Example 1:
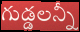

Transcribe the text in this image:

గుడ్డలన్నీ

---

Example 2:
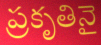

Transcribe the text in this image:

ప్రకృతినై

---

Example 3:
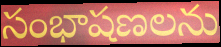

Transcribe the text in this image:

సంభాషణలను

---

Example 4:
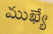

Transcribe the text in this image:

ముఖ్యే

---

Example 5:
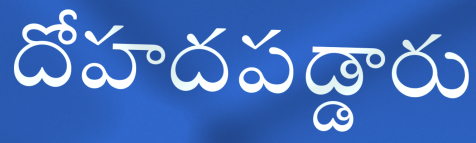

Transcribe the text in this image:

దోహదపడ్డారు